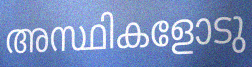
അസ്ഥികളോടു